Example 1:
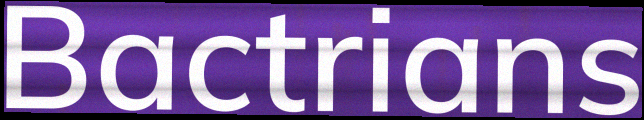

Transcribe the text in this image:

Bactrians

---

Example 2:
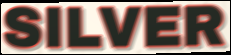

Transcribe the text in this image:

SILVER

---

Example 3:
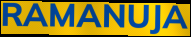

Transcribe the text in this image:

RAMANUJA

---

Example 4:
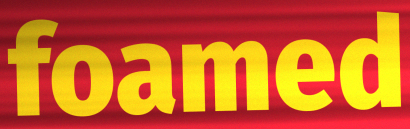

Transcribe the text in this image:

foamed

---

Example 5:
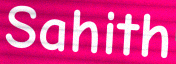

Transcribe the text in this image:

Sahith